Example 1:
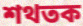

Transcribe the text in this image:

শথতক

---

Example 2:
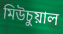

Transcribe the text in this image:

মিউচুয়াল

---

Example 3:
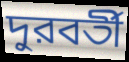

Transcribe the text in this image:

দুরবর্তী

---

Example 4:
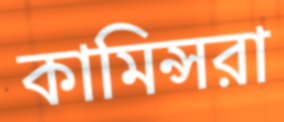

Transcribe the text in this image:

কামিন্সরা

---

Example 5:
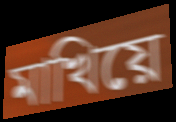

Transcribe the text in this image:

মাখিয়ে